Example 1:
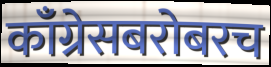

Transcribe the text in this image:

काँग्रेसबरोबरच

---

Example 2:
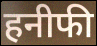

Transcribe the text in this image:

हनीफी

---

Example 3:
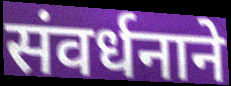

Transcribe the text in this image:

संवर्धनाने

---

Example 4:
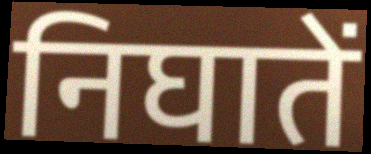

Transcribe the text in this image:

निघातें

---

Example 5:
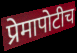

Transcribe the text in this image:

प्रेमापोटीच